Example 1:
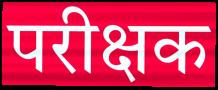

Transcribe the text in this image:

परीक्षक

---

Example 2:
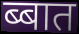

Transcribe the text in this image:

ब्बात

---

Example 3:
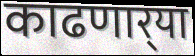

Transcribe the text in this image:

काढणार्‍या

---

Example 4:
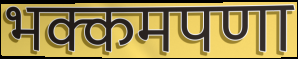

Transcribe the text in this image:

भक्कमपणा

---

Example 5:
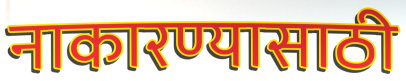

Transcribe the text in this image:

नाकारण्यासाठी